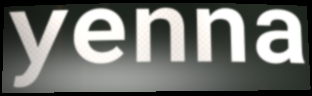
yenna